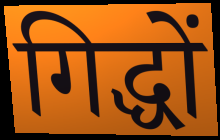
गिद्धों